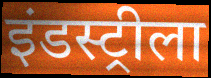
इंडस्ट्रीला